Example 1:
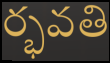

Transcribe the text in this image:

ర్భవతి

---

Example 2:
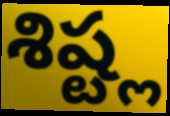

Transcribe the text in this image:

శిష్ట్ల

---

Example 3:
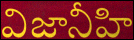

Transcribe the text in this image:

విజానీహి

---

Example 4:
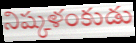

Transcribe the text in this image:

నిష్కళంకుడు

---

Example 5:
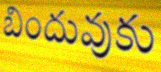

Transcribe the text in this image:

బిందువుకు